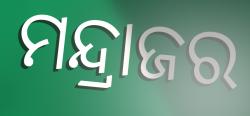
ମନ୍ଦ୍ରାଜର